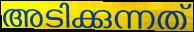
അടിക്കുന്നത്